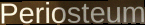
Periosteum